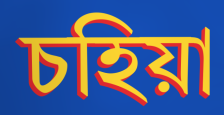
চহিয়া